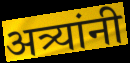
अत्र्यांनी